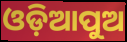
ଓଡ଼ିଆପୁଅ